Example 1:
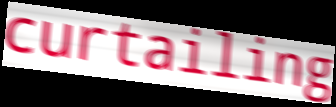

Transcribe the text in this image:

curtailing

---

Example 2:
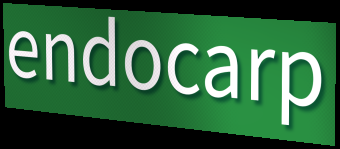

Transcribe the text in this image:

endocarp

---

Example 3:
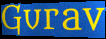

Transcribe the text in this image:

Gurav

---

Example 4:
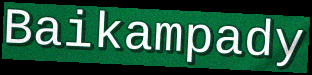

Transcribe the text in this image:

Baikampady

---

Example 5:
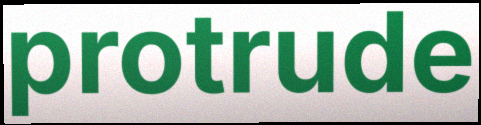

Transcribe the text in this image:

protrude